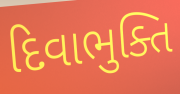
દિવાભુક્તિ